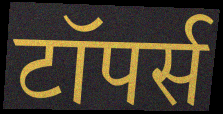
टॉपर्स